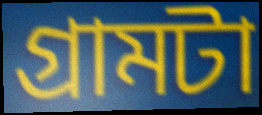
গ্রামটা